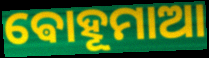
ଵୋହୂମାଆ